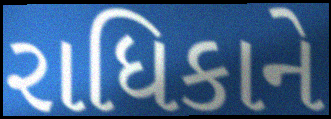
રાધિકાને